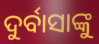
ଦୁର୍ବାସାଙ୍କୁ